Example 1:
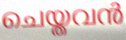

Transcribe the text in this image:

ചെയ്തവൻ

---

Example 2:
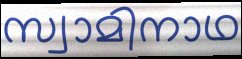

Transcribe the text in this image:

സ്വാമിനാഥ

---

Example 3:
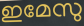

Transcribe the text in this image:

ഇമേസു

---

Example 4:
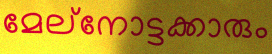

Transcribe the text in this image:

മേല്നോട്ടക്കാരും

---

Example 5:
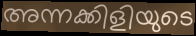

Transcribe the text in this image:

അന്നക്കിളിയുടെ